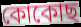
কোকোছ